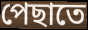
পেছাতে